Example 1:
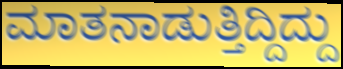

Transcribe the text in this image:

ಮಾತನಾಡುತ್ತಿದ್ದಿದ್ದು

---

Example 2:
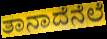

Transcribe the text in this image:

ತಾನಾದೆನೆಲೆ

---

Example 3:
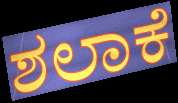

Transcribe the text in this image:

ಶಲಾಕೆ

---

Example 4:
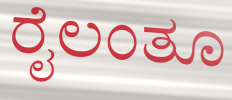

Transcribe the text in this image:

ರೈಲಂತೂ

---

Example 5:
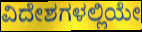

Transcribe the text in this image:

ವಿದೇಶಗಳಲ್ಲಿಯೇ